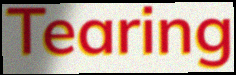
Tearing